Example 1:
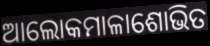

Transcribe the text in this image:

ଆଲୋକମାଳାଶୋଭିତ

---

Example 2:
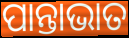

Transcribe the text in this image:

ପାନ୍ତାଭାତ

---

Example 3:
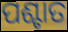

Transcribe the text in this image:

ପଶ୍ଚାତ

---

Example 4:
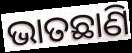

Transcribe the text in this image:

ଭାତଛାଣି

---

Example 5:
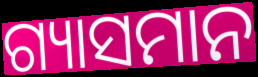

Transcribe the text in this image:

ଗ୍ୟାସମାନ